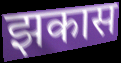
झकास